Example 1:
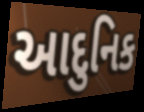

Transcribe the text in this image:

આદુનિક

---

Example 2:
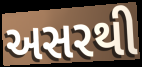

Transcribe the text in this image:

અસરથી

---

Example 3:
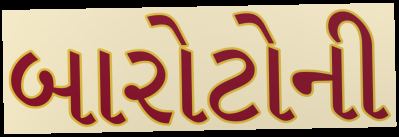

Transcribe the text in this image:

બારોટોની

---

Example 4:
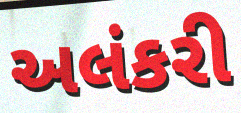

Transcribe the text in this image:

અલંકરી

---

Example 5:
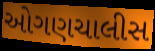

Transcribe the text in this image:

ઓગણચાલીસ